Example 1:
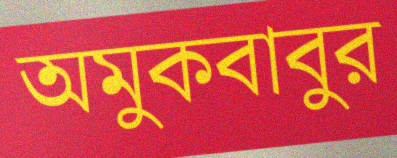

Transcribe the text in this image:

অমুকবাবুর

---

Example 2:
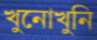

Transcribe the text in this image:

খুনোখুনি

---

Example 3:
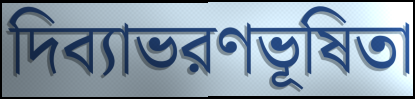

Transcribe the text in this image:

দিব্যাভরণভূষিতা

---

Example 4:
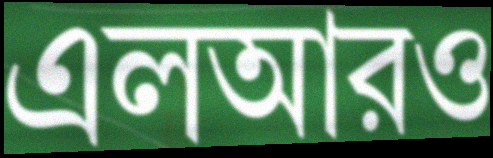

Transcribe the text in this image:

এলআরও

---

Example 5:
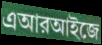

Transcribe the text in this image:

এআরআইজে